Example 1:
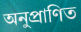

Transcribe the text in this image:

অনুপ্রাণিত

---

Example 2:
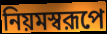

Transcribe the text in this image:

নিয়মস্বরূপে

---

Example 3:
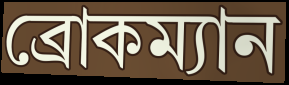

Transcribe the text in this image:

ব্রোকম্যান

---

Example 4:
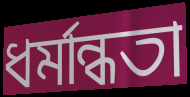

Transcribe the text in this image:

ধর্মান্ধতা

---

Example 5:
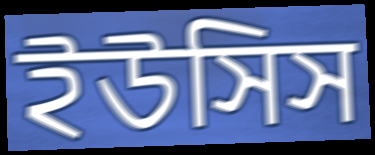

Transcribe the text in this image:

ইউসিস